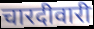
चारदीवारी